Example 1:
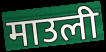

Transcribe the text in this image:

माउली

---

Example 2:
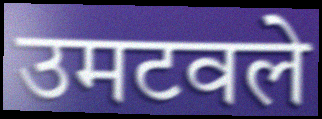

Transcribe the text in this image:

उमटवले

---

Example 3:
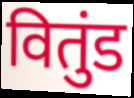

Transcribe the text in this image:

वितुंड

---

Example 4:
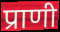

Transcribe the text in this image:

प्राणी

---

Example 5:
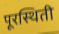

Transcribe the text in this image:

पूरस्थिती